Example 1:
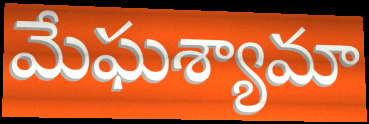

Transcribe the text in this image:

మేఘశ్యామా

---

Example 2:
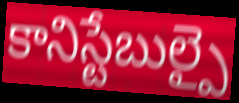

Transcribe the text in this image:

కానిస్టేబుల్పై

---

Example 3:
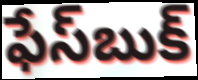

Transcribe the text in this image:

ఫేస్‌బుక్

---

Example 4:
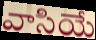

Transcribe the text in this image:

వాసియే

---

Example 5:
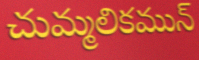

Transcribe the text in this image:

చుమ్మలికమున్